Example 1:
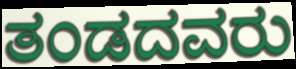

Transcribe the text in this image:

ತಂಡದವರು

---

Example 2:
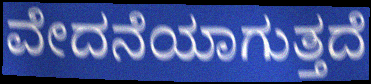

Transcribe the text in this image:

ವೇದನೆಯಾಗುತ್ತದೆ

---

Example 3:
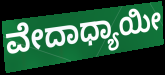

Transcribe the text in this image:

ವೇದಾಧ್ಯಾಯೀ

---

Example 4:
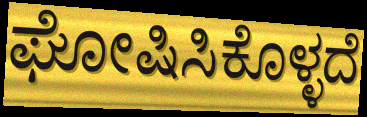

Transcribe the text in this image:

ಘೋಷಿಸಿಕೊಳ್ಳದೆ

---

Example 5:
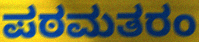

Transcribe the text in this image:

ಪಠಮತರಂ